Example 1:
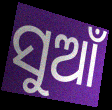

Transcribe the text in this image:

ସୁଆଁ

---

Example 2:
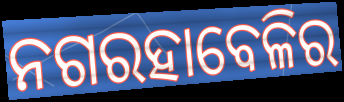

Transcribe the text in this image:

ନଗରହାବେଳିର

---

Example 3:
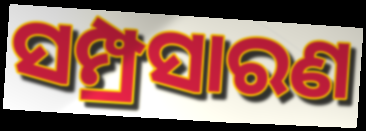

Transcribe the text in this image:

ସମ୍ପ୍ରସାରଣ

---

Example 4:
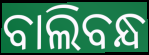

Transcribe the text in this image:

ବାଲିବନ୍ଧ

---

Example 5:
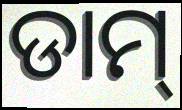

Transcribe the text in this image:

ଡାମ୍